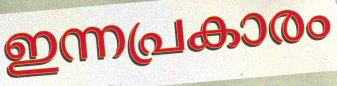
ഇന്നപ്രകാരം